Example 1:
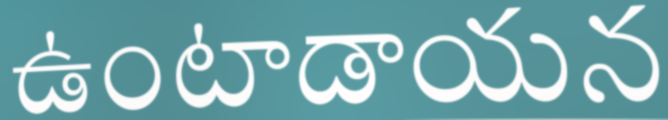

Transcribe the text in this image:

ఉంటాడాయన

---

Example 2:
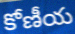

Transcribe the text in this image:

కోణీయ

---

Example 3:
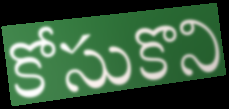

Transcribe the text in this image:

కోసుకొని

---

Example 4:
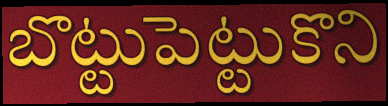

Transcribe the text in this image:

బొట్టుపెట్టుకొని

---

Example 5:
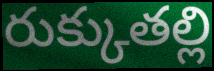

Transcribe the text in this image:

రుక్కుతల్లి